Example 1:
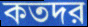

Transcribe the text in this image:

কতদর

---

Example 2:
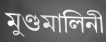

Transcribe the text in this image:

মুণ্ডমালিনী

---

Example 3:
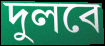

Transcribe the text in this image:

দুলবে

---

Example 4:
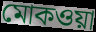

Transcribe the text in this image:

মোকওয়া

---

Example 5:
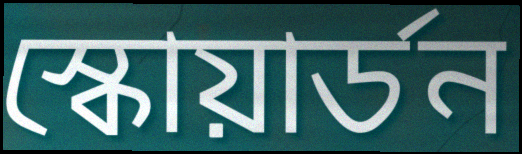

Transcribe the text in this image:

স্কোয়ার্ডন